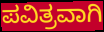
ಪವಿತ್ರವಾಗಿ